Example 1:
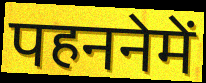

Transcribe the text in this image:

पहननेमें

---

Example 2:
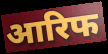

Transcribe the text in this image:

आरिफ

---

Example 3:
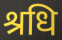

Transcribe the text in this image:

श्रधि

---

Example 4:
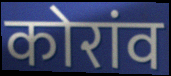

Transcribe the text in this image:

कोरांव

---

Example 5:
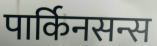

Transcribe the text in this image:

पार्किनसन्स